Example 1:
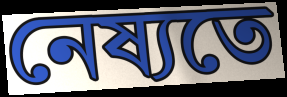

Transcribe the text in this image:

নেষ্যতে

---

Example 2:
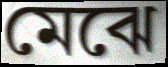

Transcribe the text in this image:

মেঝে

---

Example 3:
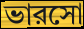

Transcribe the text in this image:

ভারসো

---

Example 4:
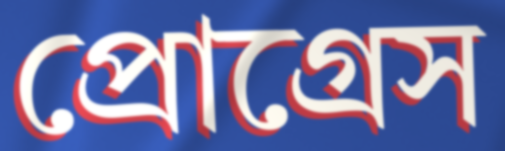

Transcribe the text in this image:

প্রোগ্রেস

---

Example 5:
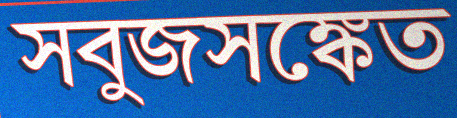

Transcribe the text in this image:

সবুজসঙ্কেত